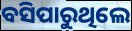
ବସିପାରୁଥିଲେ